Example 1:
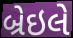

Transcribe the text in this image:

બ્રેઇલે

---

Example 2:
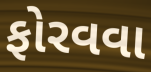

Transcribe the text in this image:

ફોરવવા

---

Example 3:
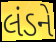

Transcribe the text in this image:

લંડને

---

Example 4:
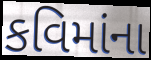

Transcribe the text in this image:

કવિમાંના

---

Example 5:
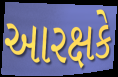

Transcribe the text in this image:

આરક્ષકે